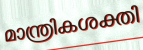
മാന്ത്രികശക്തി